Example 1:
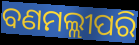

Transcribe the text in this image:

ବଣମଲ୍ଲୀପରି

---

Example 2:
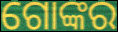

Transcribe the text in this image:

ଗୋଙ୍କର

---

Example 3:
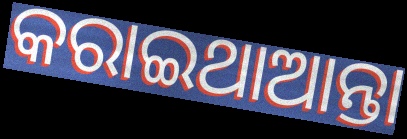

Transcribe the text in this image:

କରାଇଥାଆନ୍ତା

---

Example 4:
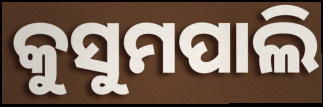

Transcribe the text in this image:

କୁସୁମପାଲି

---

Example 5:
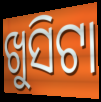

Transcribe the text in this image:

ଖୁସିଟା